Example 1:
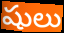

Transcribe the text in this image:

షులు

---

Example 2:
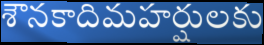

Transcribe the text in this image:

శౌనకాదిమహర్షులకు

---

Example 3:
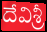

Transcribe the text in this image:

దేవిశ్రీ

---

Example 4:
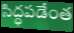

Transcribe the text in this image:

సిద్ధపడేంత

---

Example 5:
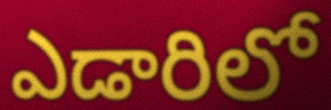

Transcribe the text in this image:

ఎడారిలో